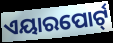
ଏୟାରପୋର୍ଟ୍